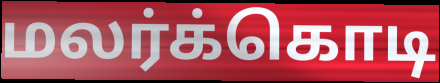
மலர்க்கொடி